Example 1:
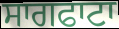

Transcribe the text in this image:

ਸਾਗਫਾਟਾ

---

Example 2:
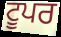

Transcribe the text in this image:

ਟੂਪਰ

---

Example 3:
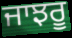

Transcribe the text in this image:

ਜਾਝਰੂ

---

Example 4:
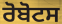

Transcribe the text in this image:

ਰੋਬੋਟਸ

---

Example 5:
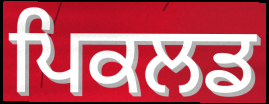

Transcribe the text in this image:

ਪਿਕਲਡ